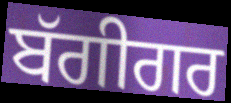
ਬੱਗੀਗਰ